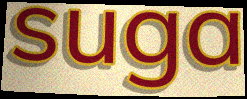
suga